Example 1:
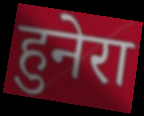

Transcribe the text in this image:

हुनेरा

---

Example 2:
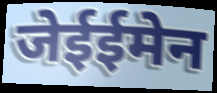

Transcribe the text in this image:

जेईईमेन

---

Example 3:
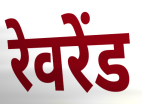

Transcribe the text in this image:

रेवरेंड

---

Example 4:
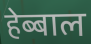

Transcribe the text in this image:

हेब्बाल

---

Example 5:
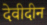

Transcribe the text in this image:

देवीदीन